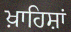
ਖ਼ਾਹਿਸ਼ਾਂ